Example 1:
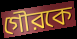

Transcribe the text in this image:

গৌরকে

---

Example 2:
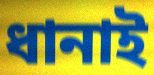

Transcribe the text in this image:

ধানাই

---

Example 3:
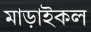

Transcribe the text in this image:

মাড়াইকল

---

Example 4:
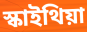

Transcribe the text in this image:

স্কাইথিয়া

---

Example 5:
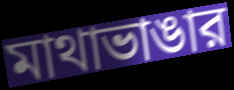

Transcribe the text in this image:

মাথাভাঙার